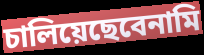
চালিয়েছেবেনামি